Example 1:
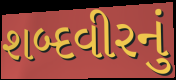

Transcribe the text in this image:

શબ્દવીરનું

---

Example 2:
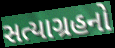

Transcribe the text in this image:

સત્યાગ્રહનો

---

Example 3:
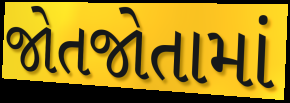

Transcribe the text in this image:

જોતજોતામાં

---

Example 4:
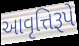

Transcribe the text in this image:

આવૃત્તિરૂપે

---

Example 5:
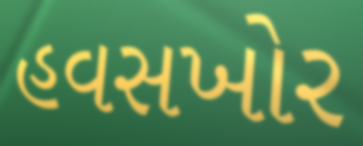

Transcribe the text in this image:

હવસખોર